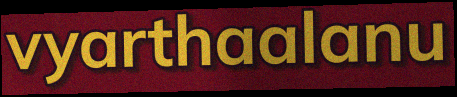
vyarthaalanu